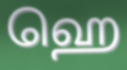
ஹெ